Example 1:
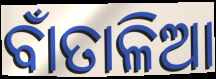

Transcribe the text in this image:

ବାଁତାଳିଆ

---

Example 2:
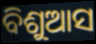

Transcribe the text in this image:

ବିଶୁଆସ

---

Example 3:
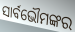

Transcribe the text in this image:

ସାର୍ବଭୌମଙ୍କର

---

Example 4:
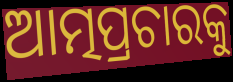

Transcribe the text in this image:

ଆତ୍ମପ୍ରଚାରକୁ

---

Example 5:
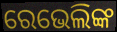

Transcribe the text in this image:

ରେଭେଲିଙ୍କ